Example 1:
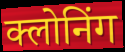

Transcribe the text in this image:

क्लोनिंग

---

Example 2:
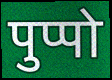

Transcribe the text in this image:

पुप्पो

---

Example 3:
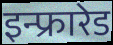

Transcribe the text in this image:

इन्फ्रारेड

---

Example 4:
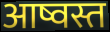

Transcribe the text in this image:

आष्वस्त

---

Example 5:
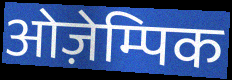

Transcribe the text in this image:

ओज़ेम्पिक